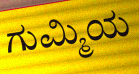
ಗುಮ್ಮಿಯ